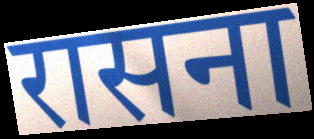
रासना